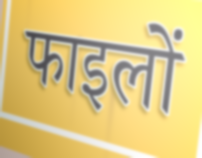
फाइलों